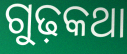
ଗୁଢ଼କଥା